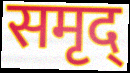
समृद्